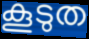
കൂടുത